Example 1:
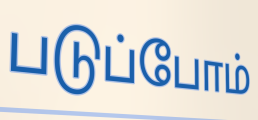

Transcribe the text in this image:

படுப்போம்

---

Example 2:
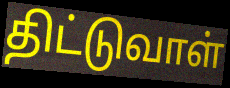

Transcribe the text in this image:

திட்டுவாள்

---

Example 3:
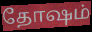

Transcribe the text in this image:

தோஷம்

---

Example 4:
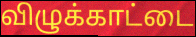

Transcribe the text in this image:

விழுக்காட்டை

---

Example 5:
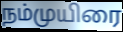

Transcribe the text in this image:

நம்முயிரை